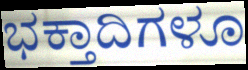
ಭಕ್ತಾದಿಗಳೂ